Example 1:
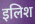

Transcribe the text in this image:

इलिश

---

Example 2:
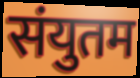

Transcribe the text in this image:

संयुतम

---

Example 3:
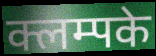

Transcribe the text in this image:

क्लम्पके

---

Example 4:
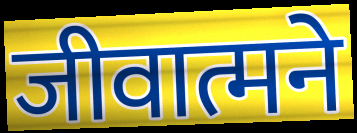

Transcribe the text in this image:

जीवात्मने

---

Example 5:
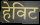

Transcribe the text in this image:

हेविट